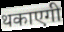
थकाएगी